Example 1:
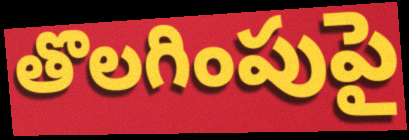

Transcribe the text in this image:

తొలగింపుపై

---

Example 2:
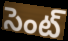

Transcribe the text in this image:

సెంట్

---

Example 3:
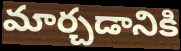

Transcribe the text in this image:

మార్చడానికి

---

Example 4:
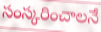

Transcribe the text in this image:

సంస్కరించాలనే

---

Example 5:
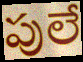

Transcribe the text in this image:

పులే